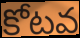
కోటవ